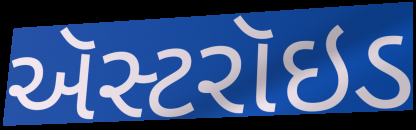
ઍસ્ટરૉઇડ